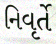
નિવૃર્તે